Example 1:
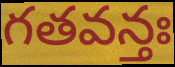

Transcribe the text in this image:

గతవన్తః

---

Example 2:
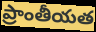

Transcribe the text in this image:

ప్రాంతీయత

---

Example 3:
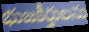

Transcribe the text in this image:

భుజకీర్తులను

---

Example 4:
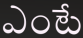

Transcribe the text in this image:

ఎంటే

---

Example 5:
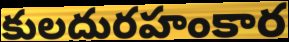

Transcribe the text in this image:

కులదురహంకార